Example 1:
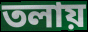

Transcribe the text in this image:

তলায়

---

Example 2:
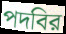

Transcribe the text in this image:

পদবির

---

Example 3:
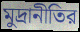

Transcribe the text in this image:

মুদ্রানীতির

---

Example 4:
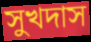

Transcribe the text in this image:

সুখদাস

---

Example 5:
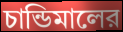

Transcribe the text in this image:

চান্ডিমালের